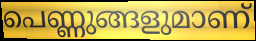
പെണ്ണുങ്ങളുമാണ്